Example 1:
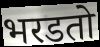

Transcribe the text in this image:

भरडतो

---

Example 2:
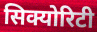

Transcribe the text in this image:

सिक्योरिटी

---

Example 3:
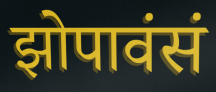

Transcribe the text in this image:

झोपावंसं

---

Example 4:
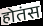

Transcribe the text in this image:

होतंस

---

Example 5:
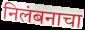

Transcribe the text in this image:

निलंबनाचा